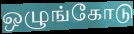
ஒழுங்கோடு